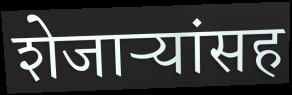
शेजाऱ्यांसह